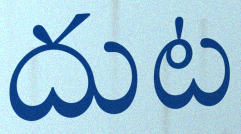
దుట